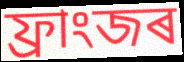
ফ্ৰাংজৰ